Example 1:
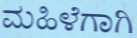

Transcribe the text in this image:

ಮಹಿಳೆಗಾಗಿ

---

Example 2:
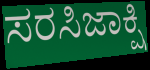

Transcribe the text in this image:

ಸರಸಿಜಾಕ್ಷಿ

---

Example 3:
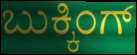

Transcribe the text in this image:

ಬುಕ್ಕಿಂಗ್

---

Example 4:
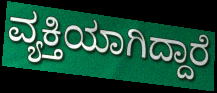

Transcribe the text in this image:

ವ್ಯಕ್ತಿಯಾಗಿದ್ದಾರೆ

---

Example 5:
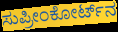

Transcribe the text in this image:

ಸುಪ್ರೀಂಕೋರ್ಟ್‌ನ